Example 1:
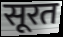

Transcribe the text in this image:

सूरत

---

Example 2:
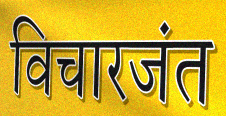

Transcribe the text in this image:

विचारजंत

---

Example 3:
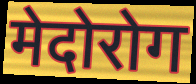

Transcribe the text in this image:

मेदोरोग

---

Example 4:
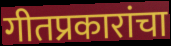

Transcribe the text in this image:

गीतप्रकारांचा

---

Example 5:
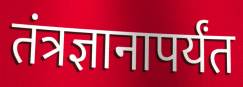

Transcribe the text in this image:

तंत्रज्ञानापर्यंत